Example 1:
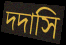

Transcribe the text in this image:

দদাসি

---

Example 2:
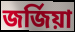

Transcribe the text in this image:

জর্জিয়া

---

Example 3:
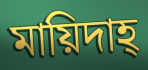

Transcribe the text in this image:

মায়িদাহ্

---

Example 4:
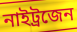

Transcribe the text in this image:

নাইট্রজেন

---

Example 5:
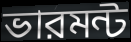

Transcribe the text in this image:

ভারমন্ট